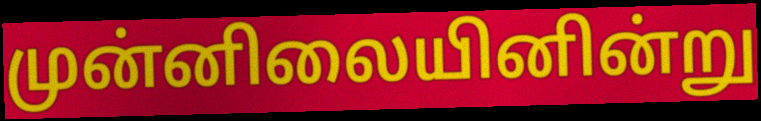
முன்னிலையினின்று